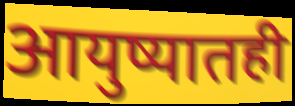
आयुष्यातही